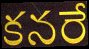
కనరే